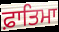
ਫ਼ਾਤਿਮਾ